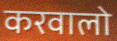
करवालो